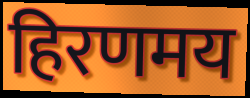
हिरणमय